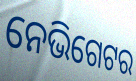
ନେଭିଗେଟର